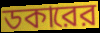
ডকারের